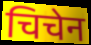
चिचेन